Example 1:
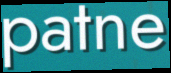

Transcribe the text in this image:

patne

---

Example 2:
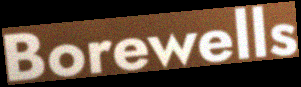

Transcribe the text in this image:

Borewells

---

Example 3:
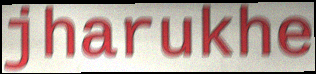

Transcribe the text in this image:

jharukhe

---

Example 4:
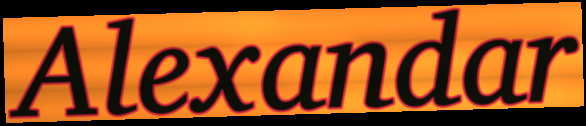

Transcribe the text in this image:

Alexandar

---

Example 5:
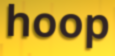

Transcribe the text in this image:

hoop